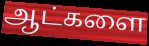
ஆட்களை